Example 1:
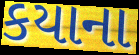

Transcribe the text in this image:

કયાના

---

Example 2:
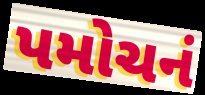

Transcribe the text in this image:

પમોચનં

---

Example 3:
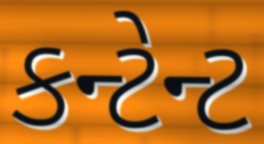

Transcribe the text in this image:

કન્ટેન્ટ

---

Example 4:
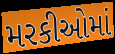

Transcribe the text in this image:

મરકીઓમાં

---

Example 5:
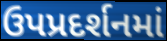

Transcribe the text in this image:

ઉપપ્રદર્શનમાં